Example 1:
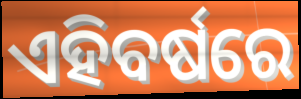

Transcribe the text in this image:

ଏହିବର୍ଷରେ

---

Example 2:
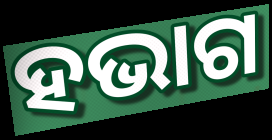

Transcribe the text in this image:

ହଭାଗ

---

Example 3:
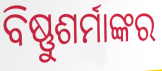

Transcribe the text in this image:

ବିଷ୍ଣୁଶର୍ମାଙ୍କର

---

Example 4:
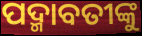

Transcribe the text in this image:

ପଦ୍ମାବତୀଙ୍କୁ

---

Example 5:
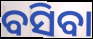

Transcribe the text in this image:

ବସିବା